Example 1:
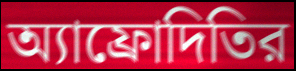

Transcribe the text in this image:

অ্যাফ্রোদিতির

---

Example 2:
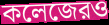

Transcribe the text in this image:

কলেজেরও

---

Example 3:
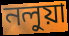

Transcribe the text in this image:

নলুয়া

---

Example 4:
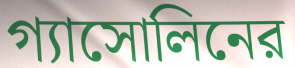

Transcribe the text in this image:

গ্যাসোলিনের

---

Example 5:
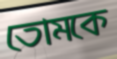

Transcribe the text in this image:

তোমকে